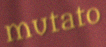
mutato